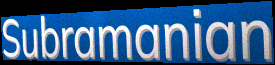
Subramanian